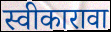
स्वीकारावा